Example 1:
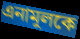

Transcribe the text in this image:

এনামুলকে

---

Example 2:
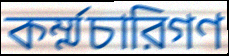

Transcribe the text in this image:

কর্ম্মচারিগণ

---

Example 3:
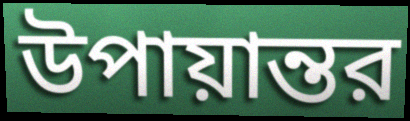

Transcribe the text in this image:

উপায়ান্তর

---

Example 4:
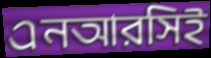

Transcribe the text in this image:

এনআরসিই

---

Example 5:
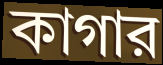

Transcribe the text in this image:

কাগার